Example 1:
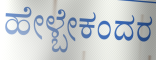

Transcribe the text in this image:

ಹೇಳ್ಬೇಕಂದರ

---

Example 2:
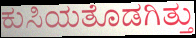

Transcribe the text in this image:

ಕುಸಿಯತೊಡಗಿತ್ತು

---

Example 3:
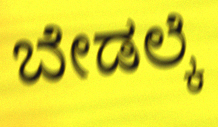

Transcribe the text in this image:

ಬೇಡಲ್ಕೆ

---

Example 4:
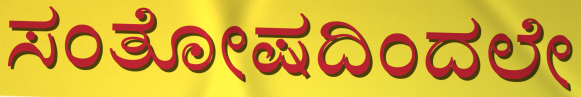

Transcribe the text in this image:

ಸಂತೋಷದಿಂದಲೇ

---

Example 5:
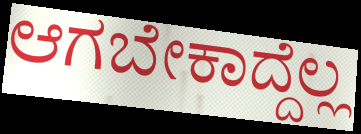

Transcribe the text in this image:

ಆಗಬೇಕಾದ್ದೆಲ್ಲ